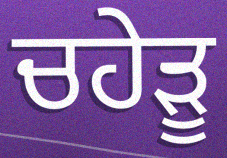
ਚਹੇੜੂ